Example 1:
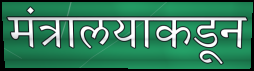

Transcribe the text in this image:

मंत्रालयाकडून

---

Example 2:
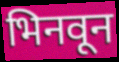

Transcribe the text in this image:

भिनवून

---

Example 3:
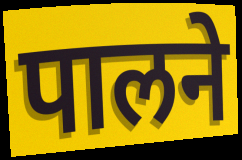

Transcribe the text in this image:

पालने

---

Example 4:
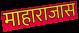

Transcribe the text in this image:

माहाराजास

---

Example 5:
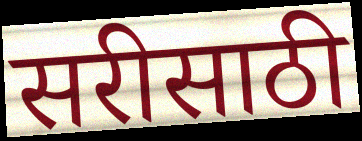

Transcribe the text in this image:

सरीसाठी